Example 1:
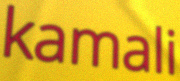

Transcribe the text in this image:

kamali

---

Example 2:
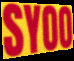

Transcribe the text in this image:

SYOO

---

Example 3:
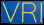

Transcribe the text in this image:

VRI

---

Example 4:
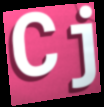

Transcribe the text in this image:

Cj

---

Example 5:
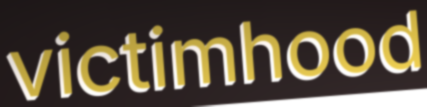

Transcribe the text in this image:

victimhood